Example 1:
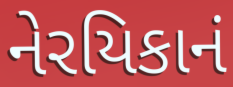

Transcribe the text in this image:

નેરયિકાનં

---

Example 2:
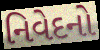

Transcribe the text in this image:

નિવેદનો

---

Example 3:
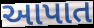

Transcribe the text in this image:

આપાત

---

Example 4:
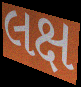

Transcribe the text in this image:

લક્ષ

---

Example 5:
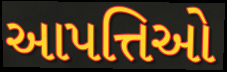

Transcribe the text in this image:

આપત્તિઓ